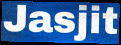
Jasjit